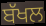
ਬੱਖਲ